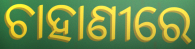
ଚାହାଣୀରେ